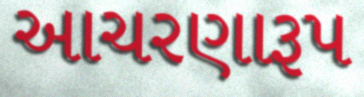
આચરણારૂપ